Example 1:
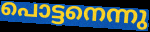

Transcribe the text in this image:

പൊട്ടനെന്നു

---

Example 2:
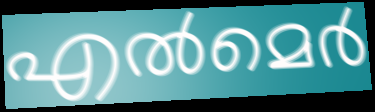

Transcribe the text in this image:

എൽമെർ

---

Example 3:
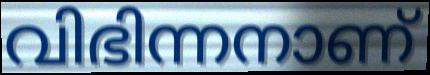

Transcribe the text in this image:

വിഭിന്നനാണ്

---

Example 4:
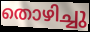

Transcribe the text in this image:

തൊഴിച്ചു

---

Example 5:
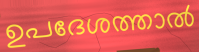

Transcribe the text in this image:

ഉപദേശത്താൽ